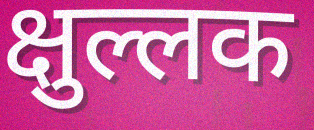
क्षुल्लक